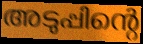
അടുപ്പിന്റെ